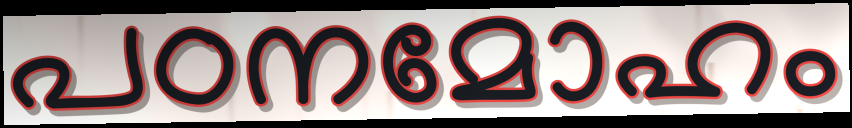
പഠനമോഹം